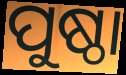
ପୁଷ୍ଠା